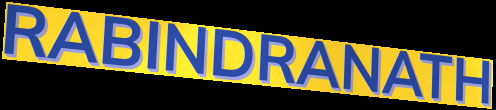
RABINDRANATH